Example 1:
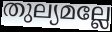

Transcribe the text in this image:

തുല്യമല്ലേ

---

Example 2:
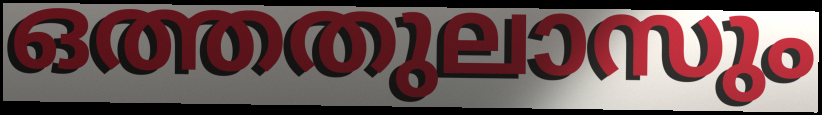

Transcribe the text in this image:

ഒത്തതുലാസും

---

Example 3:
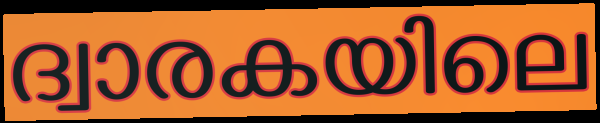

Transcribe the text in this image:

ദ്വാരകയിലെ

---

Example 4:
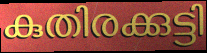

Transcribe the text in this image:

കുതിരക്കുട്ടി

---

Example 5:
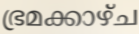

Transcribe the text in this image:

ഭ്രമക്കാഴ്ച